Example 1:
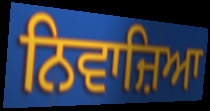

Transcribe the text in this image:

ਨਿਵਾਜ਼ਿਆ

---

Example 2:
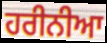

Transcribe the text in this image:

ਹਰੀਨੀਆ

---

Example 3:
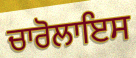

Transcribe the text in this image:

ਚਾਰੋਲਾਇਸ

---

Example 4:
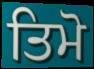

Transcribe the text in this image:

ਤਿਮੋ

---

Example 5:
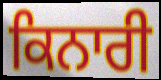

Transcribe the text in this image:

ਕਿਨਾਰੀ